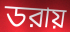
ডরায়